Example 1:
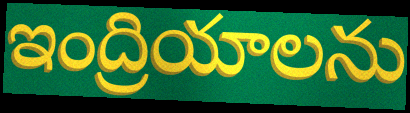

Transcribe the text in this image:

ఇంద్రియాలను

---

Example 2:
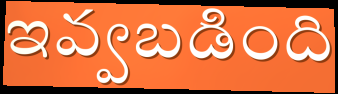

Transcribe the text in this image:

ఇవ్వబడింది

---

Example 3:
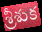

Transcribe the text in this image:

శ్రీశుక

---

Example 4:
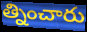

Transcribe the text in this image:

త్నించారు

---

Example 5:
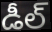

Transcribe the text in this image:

డీల్